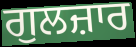
ਗੁਲਜ਼ਾਰ